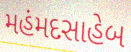
મહંમદસાહેબ